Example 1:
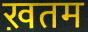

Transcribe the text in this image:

ख़तम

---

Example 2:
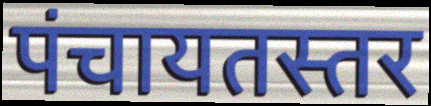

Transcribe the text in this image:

पंचायतस्तर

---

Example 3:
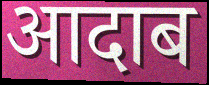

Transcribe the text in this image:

आदाब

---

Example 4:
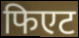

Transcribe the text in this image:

फिएट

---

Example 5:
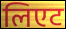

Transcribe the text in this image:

लिएट